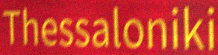
Thessaloniki